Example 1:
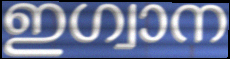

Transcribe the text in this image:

ഇഗ്വാന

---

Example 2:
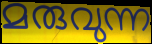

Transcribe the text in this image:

മരുവുന്ന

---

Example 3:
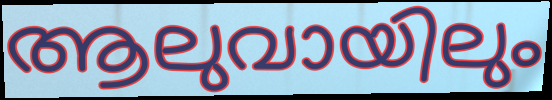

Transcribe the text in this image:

ആലുവായിലും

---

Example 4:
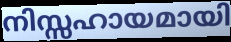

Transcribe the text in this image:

നിസ്സഹായമായി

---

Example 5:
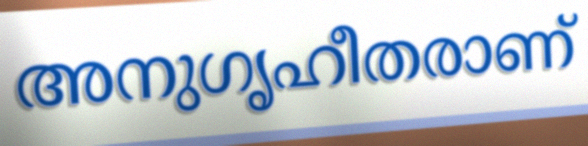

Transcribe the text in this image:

അനുഗൃഹീതരാണ്